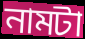
নামটা